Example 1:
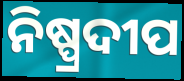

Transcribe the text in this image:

ନିଷ୍ପ୍ରଦୀପ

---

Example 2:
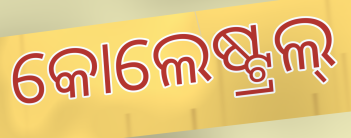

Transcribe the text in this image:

କୋଲେଷ୍ଟ୍ରଲ୍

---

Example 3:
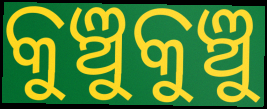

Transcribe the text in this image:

କୁଞ୍ଚୁକୁଞ୍ଚୁ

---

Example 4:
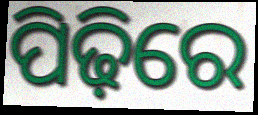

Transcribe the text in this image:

ପିଢ଼ିରେ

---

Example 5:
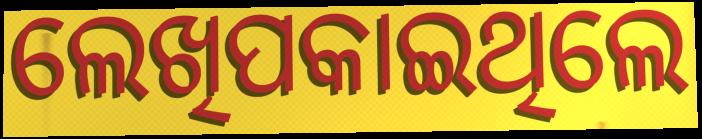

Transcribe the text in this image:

ଲେଖିପକାଇଥିଲେ